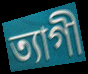
ত্যাগী